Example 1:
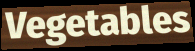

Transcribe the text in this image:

Vegetables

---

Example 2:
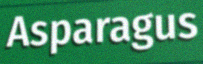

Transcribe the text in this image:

Asparagus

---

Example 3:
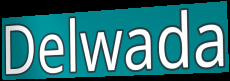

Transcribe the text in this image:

Delwada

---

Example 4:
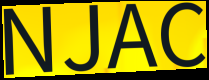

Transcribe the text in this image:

NJAC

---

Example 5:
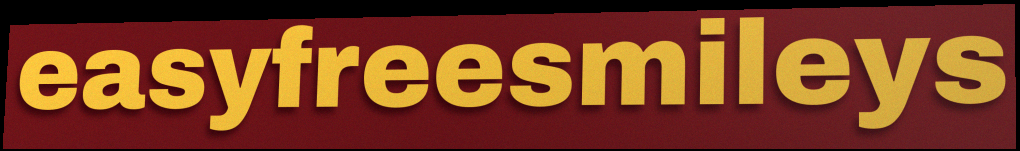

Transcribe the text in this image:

easyfreesmileys